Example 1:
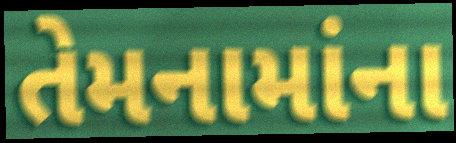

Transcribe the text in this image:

તેમનામાંના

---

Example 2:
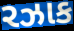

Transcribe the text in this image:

રઝાક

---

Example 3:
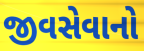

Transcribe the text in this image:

જીવસેવાનો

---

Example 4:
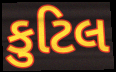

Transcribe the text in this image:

કુટિલ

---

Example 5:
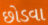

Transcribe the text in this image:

છોડવા